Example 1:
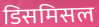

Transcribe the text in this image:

डिसमिसल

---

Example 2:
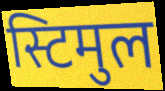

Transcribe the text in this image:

स्टिमुल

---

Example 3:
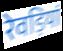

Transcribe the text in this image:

रेवड़ियां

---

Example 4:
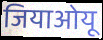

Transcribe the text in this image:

जियाओयू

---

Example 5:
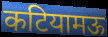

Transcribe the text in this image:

कटियामऊ